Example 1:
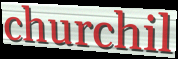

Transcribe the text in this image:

churchil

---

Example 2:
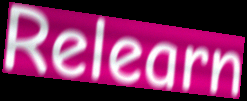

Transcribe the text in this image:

Relearn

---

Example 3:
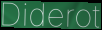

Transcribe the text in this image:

Diderot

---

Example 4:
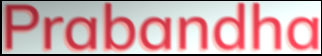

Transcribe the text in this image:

Prabandha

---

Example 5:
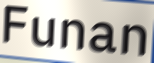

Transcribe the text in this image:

Funan